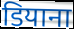
डियाना